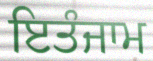
ਇਤੰਜਾਮ